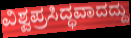
ವಿಶ್ವಪ್ರಸಿದ್ಧವಾದದ್ದು